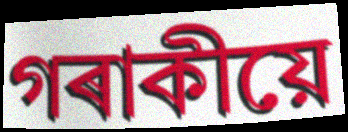
গৰাকীয়ে